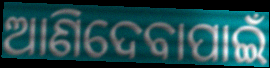
ଆଣିଦେବାପାଇଁ